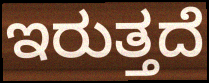
ಇರುತ್ತದೆ